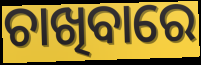
ଚାଖିବାରେ